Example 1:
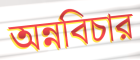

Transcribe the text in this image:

অন্নবিচার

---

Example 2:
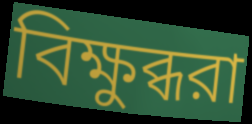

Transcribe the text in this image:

বিক্ষুব্ধরা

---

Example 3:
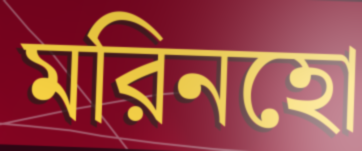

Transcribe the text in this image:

মরিনহো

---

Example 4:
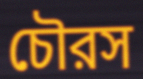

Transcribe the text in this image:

চৌরস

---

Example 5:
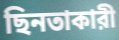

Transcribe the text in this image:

ছিনতাকারী